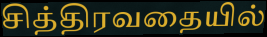
சித்திரவதையில்